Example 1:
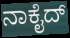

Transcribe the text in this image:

ನಾಕೈದ್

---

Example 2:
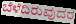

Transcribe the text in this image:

ಬೆಳೆದಿರುವುದರ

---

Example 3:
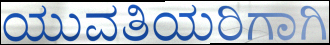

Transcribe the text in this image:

ಯುವತಿಯರಿಗಾಗಿ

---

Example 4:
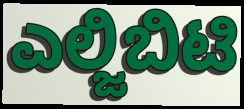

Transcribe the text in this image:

ಎಲ್ಜಿಬಿಟಿ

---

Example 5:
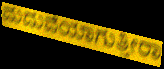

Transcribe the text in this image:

ಮದುವೆಯಾಗುತ್ತೀರಾ